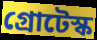
গ্রোটেস্ক